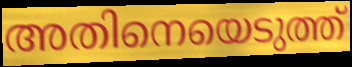
അതിനെയെടുത്ത്